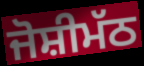
ਜੋਸ਼ੀਮੱਠ